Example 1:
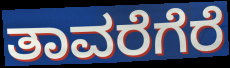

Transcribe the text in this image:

ತಾವರೆಗೆರೆ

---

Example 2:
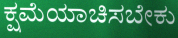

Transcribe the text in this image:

ಕ್ಷಮೆಯಾಚಿಸಬೇಕು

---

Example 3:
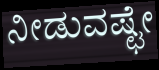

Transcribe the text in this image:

ನೀಡುವಷ್ಟೇ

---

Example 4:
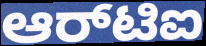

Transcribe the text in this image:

ಆರ್‌ಟಿಐ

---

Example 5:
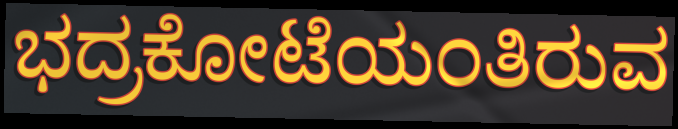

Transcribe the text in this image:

ಭದ್ರಕೋಟೆಯಂತಿರುವ